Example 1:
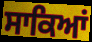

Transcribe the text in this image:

ਸਾਕਿਆਂ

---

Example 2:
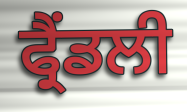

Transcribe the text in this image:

ਫ੍ਰੈਂਡਲੀ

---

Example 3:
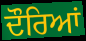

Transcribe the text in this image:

ਦੌਰਿਆਂ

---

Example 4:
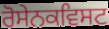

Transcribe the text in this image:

ਰੋਸੇਨਕਵਿਸਟ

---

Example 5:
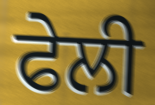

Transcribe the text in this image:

ਫੇਲੀ